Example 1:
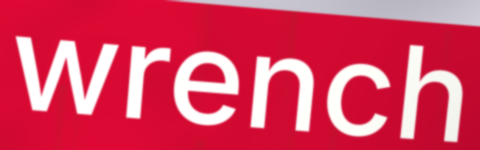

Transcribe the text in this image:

wrench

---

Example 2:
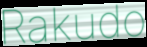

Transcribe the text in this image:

Rakudo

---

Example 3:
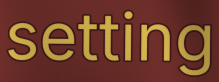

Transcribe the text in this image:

setting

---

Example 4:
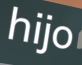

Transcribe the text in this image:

hijo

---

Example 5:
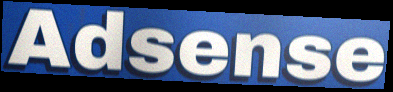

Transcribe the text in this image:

Adsense